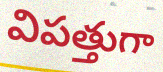
విపత్తుగా